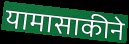
यामासाकीने